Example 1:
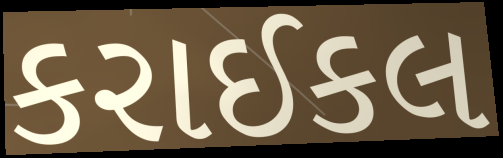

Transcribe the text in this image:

કરાઈકલ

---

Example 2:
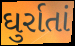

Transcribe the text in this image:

ઘુર્રાતાં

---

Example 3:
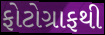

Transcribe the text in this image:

ફોટોગ્રાફથી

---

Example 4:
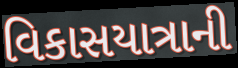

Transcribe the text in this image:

વિકાસયાત્રાની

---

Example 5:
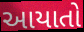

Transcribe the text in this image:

આયાતો